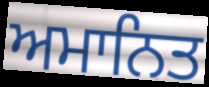
ਅਮਾਨਿਤ